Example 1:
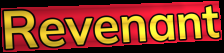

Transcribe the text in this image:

Revenant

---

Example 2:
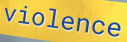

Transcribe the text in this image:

violence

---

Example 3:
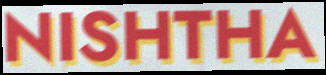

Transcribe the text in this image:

NISHTHA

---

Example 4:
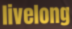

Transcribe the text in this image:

livelong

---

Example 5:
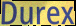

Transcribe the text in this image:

Durex